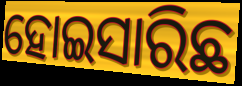
ହୋଇସାରିଛ